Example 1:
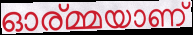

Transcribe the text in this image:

ഓര്മ്മയാണ്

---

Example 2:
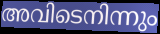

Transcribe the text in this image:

അവിടെനിന്നും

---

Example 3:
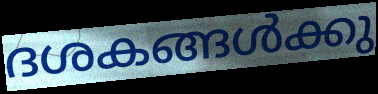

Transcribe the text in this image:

ദശകങ്ങൾക്കു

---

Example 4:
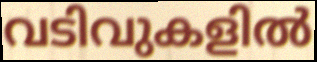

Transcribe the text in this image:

വടിവുകളിൽ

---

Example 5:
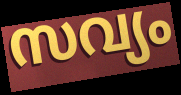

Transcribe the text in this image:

സവ്യം